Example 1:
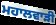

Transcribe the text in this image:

ਮਹਾਲਵਾੜੀ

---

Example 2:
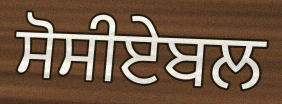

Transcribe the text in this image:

ਸੋਸੀਏਬਲ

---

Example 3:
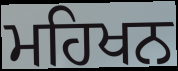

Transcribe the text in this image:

ਮਹਿਖਨ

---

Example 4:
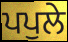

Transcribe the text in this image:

ਪਪੁਲੇ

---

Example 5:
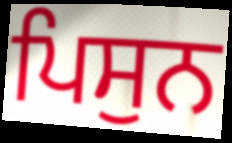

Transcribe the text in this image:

ਪਿਸੁਨ